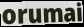
orumai